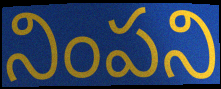
నింపని